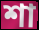
শা